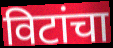
विटांचा